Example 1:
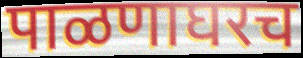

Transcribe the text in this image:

पाळणाघरच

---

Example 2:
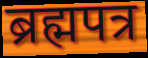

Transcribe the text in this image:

ब्रह्मपत्र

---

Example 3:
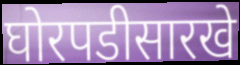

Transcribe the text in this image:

घोरपडीसारखे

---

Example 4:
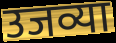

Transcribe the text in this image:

उजव्या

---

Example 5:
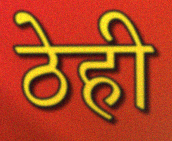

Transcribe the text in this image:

ठेही